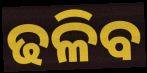
ଢଳିବ